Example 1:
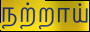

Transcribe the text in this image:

நற்றாய்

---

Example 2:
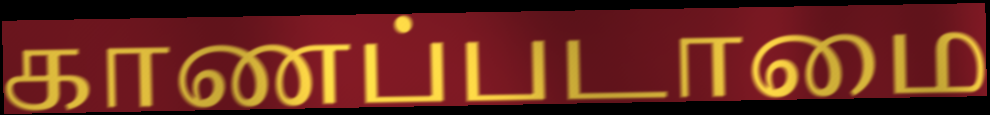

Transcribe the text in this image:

காணப்படாமை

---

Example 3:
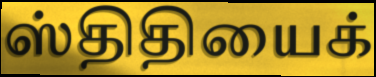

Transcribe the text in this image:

ஸ்திதியைக்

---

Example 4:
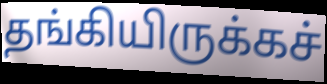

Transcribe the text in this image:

தங்கியிருக்கச்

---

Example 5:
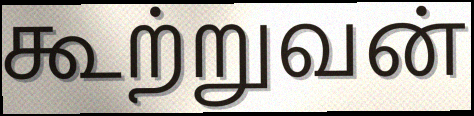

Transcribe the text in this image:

கூற்றுவன்